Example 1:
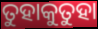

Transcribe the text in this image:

ତୁହାକୁତୁହା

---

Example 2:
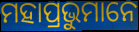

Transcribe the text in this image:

ମହାପ୍ରଭୁମାନେ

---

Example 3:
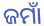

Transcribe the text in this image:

ଜମାଁ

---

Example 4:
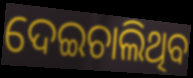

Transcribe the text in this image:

ଦେଇଚାଲିଥିବ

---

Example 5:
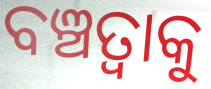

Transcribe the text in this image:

ବଞ୍ଚତ୍ବାକୁ